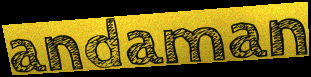
andaman